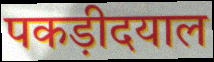
पकड़ीदयाल